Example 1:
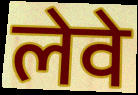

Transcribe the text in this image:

लेवे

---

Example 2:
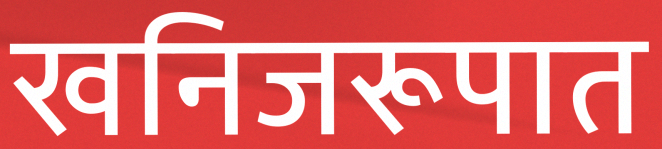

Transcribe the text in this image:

खनिजरूपात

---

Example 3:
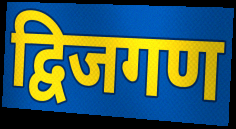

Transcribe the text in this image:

द्विजगण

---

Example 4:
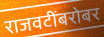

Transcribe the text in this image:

राजवटींबरोबर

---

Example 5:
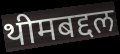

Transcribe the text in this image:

थीमबद्दल